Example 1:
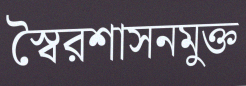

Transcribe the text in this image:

স্বৈরশাসনমুক্ত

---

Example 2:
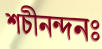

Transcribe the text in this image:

শচীনন্দনঃ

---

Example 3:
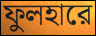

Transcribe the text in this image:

ফুলহারে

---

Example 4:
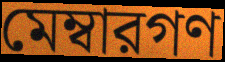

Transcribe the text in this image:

মেম্বারগণ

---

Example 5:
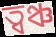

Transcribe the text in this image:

ত্বঞ্চ